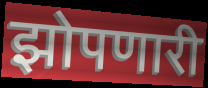
झोपणारी